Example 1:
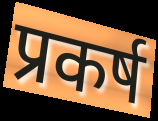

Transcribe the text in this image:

प्रकर्ष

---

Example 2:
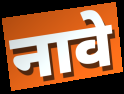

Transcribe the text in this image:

नावे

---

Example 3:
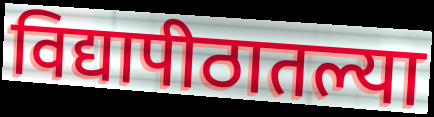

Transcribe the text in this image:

विद्यापीठातल्या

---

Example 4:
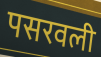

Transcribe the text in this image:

पसरवली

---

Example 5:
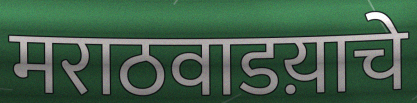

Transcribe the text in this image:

मराठवाडय़ाचे